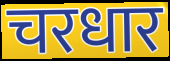
चरधार